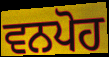
ਵਨਪੋਹ